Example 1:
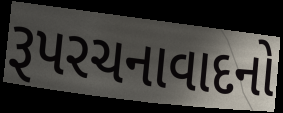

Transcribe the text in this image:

રૂપરચનાવાદનો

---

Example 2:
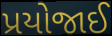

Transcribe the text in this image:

પ્રયોજાઈ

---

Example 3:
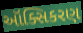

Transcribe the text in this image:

ઑક્સિકરણ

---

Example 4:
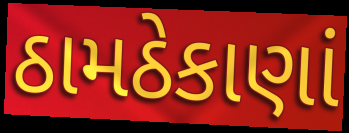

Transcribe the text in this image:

ઠામઠેકાણાં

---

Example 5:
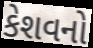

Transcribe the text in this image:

કેશવનો